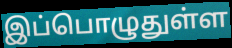
இப்பொழுதுள்ள